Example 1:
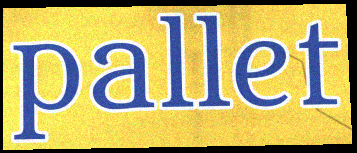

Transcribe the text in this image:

pallet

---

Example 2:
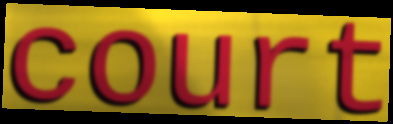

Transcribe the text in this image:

court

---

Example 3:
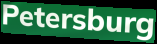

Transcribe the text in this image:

Petersburg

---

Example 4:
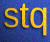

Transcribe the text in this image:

stq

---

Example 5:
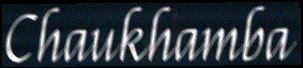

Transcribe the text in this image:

Chaukhamba